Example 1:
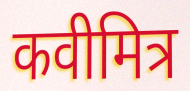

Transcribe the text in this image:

कवीमित्र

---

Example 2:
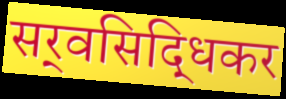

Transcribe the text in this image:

सर्वसिद्धिकर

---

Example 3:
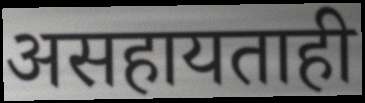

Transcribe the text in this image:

असहायताही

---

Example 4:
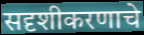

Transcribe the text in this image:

सदृशीकरणाचे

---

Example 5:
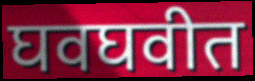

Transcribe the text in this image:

घवघवीत